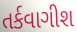
તર્કવાગીશ